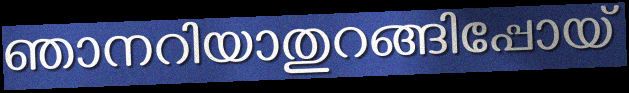
ഞാനറിയാതുറങ്ങിപ്പോയ്